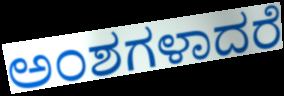
ಅಂಶಗಳಾದರೆ